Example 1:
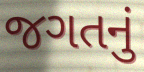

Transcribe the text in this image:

જગતનું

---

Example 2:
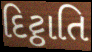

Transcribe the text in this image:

દિટ્ઠાતિ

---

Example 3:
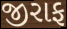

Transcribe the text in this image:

જીરાફ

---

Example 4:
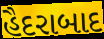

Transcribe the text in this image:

હૈદરાબાદ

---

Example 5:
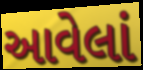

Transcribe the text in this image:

આવેલાં